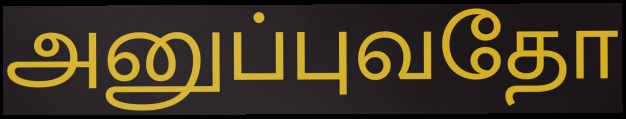
அனுப்புவதோ